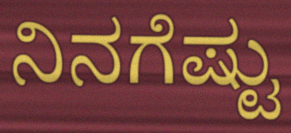
ನಿನಗೆಷ್ಟು